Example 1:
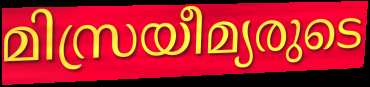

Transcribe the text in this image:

മിസ്രയീമ്യരുടെ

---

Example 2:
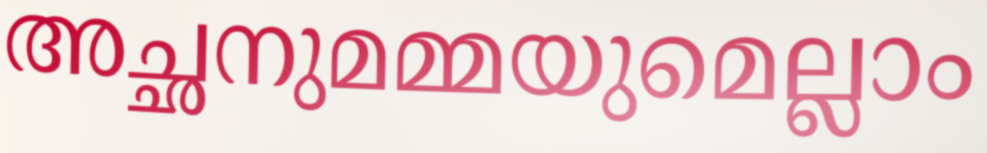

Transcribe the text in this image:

അച്ഛനുമമ്മയുമെല്ലാം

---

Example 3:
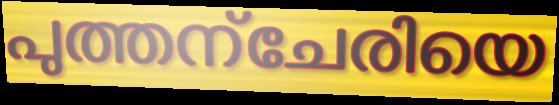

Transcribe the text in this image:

പുത്തന്ചേരിയെ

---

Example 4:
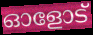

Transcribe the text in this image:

ഓളോട്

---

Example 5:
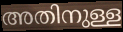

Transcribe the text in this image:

അതിനുള്ള